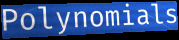
Polynomials